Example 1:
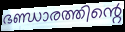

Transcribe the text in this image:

ഭണ്ഡാരത്തിന്റെ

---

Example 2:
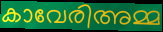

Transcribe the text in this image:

കാവേരിഅമ്മ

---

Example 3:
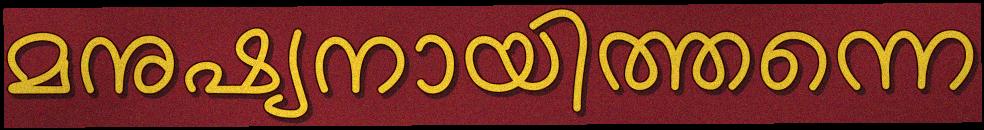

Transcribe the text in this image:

മനുഷ്യനായിത്തന്നെ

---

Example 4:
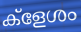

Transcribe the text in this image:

ക്ളേശം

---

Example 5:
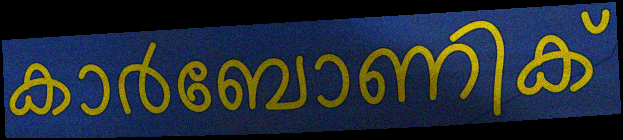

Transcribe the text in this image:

കാർബോണിക്